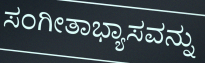
ಸಂಗೀತಾಭ್ಯಾಸವನ್ನು